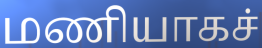
மணியாகச்